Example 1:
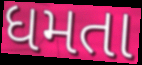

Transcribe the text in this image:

ધમતા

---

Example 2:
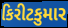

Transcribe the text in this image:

કિરીટકુમાર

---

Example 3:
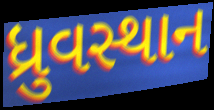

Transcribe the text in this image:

ધ્રુવસ્થાન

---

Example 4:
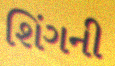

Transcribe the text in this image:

શિંગની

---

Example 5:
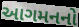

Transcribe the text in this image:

આગમનનો